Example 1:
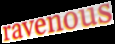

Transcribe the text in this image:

ravenous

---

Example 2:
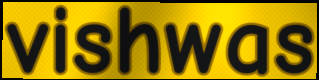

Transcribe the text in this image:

vishwas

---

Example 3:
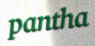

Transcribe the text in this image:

pantha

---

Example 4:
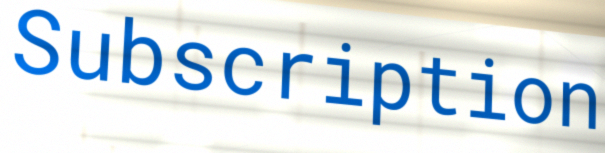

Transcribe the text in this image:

Subscription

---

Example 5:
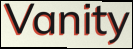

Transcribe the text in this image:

Vanity